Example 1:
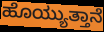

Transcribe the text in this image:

ಹೊಯ್ಯುತ್ತಾನೆ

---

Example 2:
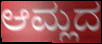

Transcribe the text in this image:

ಆಮ್ಲದ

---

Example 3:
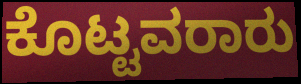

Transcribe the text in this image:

ಕೊಟ್ಟವರಾರು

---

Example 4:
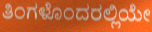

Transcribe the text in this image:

ತಿಂಗಳೊಂದರಲ್ಲಿಯೇ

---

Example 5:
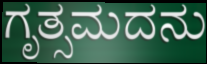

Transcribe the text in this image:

ಗೃತ್ಸಮದನು